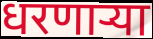
धरणाऱ्या